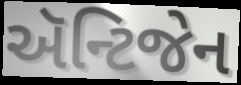
ઍન્ટિજેન